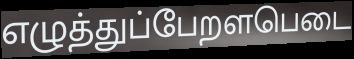
எழுத்துப்பேறளபெடை